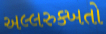
અલ્લરુક્ખતો